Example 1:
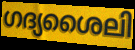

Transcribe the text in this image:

ഗദ്യശൈലി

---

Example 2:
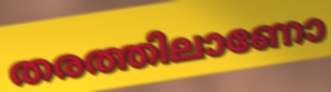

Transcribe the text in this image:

തരത്തിലാണോ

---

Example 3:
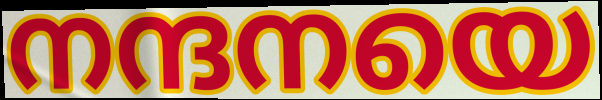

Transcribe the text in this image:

നന്ദനയെ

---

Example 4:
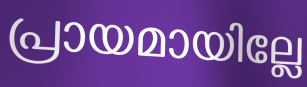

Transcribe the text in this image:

പ്രായമായില്ലേ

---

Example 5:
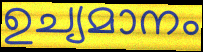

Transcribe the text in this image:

ഉച്യമാനം